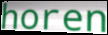
horen